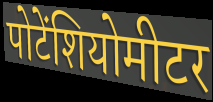
पोटेंशियोमीटर